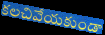
కలచివేయకుండా